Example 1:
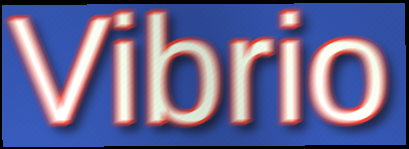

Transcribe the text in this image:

Vibrio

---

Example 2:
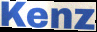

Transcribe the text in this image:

Kenz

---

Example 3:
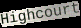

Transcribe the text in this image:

Highcourt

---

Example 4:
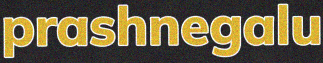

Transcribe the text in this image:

prashnegalu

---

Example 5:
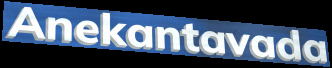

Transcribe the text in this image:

Anekantavada